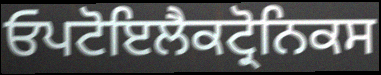
ਓਪਟੋਇਲੈਕਟ੍ਰੋਨਿਕਸ